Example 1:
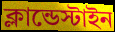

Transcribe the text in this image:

ক্লান্ডেস্টাইন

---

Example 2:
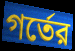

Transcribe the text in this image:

গর্তের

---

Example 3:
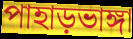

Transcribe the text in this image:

পাহাড়ভাঙ্গা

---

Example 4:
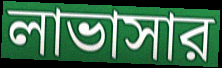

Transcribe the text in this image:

লাভাসার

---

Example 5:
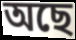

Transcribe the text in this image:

অছে